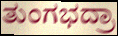
ತುಂಗಭದ್ರಾ